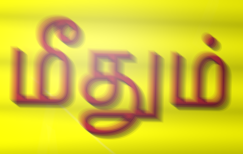
மீதும்